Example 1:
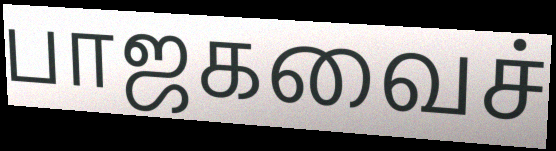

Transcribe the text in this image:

பாஜகவைச்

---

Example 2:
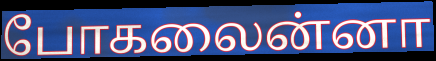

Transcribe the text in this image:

போகலைன்னா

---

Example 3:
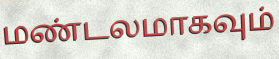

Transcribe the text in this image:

மண்டலமாகவும்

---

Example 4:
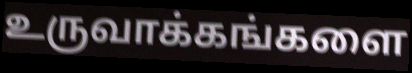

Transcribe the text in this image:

உருவாக்கங்களை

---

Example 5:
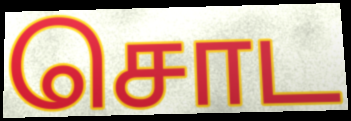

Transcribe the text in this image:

சொட